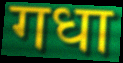
गधा